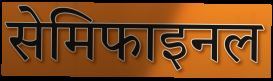
सेमिफाइनल